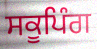
ਸਕੂਪਿੰਗ